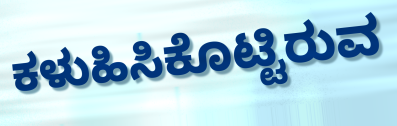
ಕಳುಹಿಸಿಕೊಟ್ಟಿರುವ